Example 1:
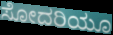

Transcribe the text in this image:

ಸೋದರಿಯೂ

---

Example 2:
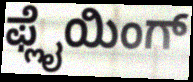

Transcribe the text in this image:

ಫ್ಲೈಯಿಂಗ್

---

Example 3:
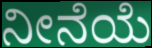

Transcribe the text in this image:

ನೀನೆಯೆ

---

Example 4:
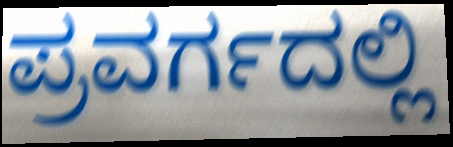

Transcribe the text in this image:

ಪ್ರವರ್ಗದಲ್ಲಿ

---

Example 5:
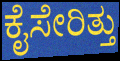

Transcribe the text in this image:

ಕೈಸೇರಿತ್ತು